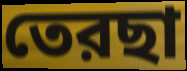
তেরছা